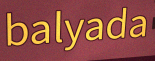
balyada